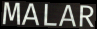
MALAR